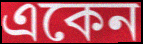
একেন